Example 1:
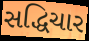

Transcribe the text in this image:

સદ્ધિચાર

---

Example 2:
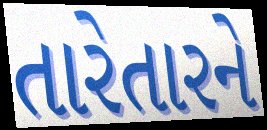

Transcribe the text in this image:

તારેતારને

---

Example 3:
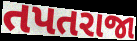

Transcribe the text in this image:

તપતરાજા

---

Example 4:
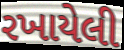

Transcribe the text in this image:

રખાયેલી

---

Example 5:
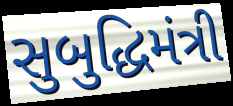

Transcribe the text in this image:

સુબુદ્ધિમંત્રી